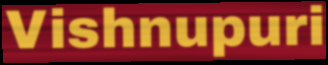
Vishnupuri